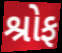
શ્રોફ